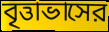
বৃত্তাভাসের